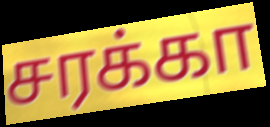
சரக்கா